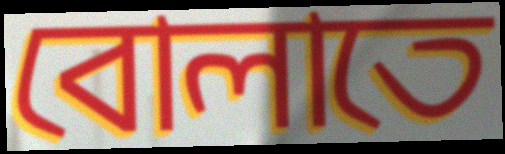
বোলাতে